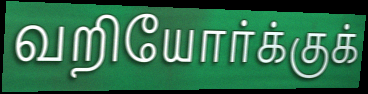
வறியோர்க்குக்